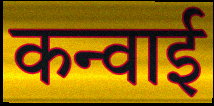
कन्वाई